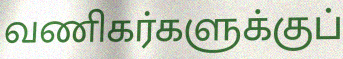
வணிகர்களுக்குப்